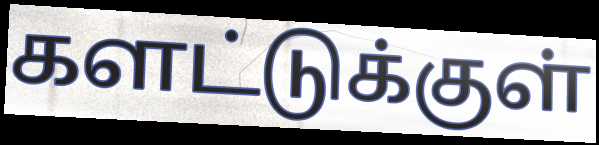
களட்டுக்குள்